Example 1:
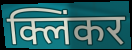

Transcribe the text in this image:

क्लिंकर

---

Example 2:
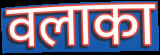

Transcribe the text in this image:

वलाका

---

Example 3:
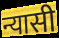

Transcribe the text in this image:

न्यासी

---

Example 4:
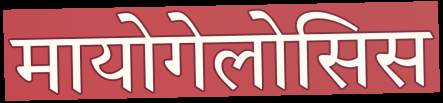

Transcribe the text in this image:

मायोगेलोसिस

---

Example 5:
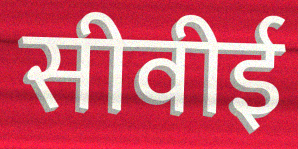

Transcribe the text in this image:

सीवीई